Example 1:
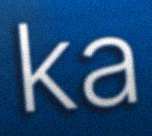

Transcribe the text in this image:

ka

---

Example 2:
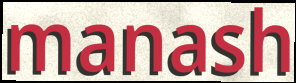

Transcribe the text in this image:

manash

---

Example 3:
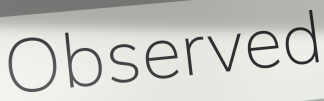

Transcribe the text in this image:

Observed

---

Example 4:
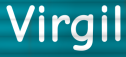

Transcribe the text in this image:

Virgil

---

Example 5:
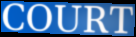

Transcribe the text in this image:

COURT